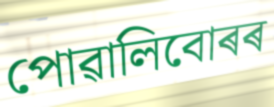
পোৱালিবোৰৰ